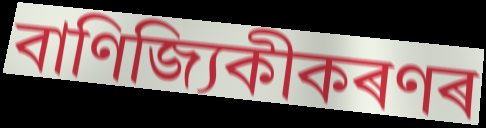
বাণিজ্যিকীকৰণৰ